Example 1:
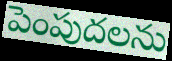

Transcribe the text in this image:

పెంపుదలను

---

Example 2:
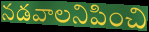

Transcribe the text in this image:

నడవాలనిపించి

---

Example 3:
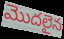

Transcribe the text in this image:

మొదలైన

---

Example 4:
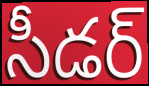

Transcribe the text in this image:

సీడర్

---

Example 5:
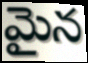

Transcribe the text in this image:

మైన